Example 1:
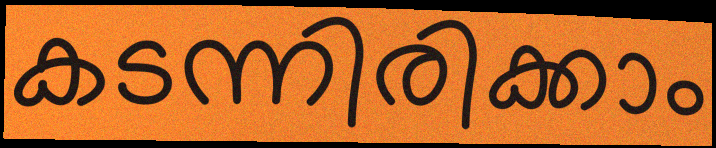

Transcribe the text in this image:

കടന്നിരിക്കാം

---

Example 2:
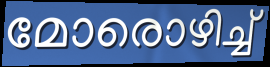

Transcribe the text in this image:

മോരൊഴിച്ച്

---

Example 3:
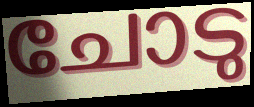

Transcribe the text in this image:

ചോടു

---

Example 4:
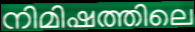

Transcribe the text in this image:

നിമിഷത്തിലെ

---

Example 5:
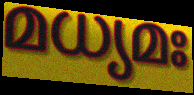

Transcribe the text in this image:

മധ്യമഃ